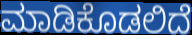
ಮಾಡಿಕೊಡಲಿದೆ